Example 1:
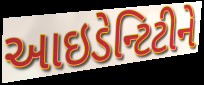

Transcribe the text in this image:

આઇડેન્ટિટીને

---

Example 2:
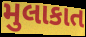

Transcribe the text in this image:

મુલાકાત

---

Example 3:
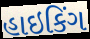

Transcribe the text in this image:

હાઇકિંગ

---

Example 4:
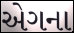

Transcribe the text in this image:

એગના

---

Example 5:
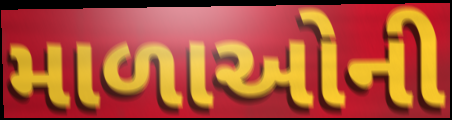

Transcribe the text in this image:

માળાઓની